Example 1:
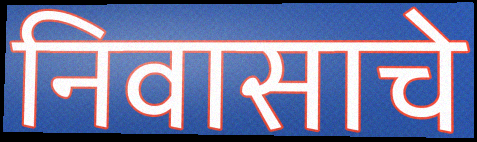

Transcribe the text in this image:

निवासाचे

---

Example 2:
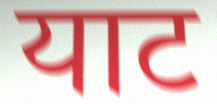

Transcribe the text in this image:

याट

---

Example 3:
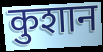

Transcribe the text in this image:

कुशान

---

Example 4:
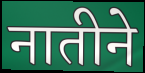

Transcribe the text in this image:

नातीने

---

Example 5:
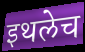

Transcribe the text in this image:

इथलेच